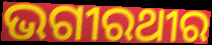
ଭଗୀରଥୀର